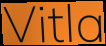
Vitla